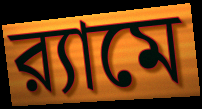
র‍্যামে